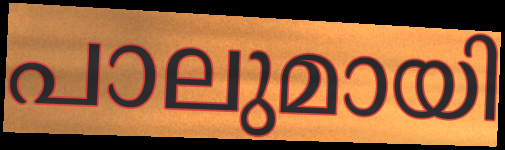
പാലുമായി